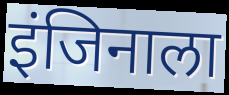
इंजिनाला